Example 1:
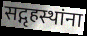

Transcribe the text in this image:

सद्गृहस्थांना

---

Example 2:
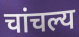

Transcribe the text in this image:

चांचल्य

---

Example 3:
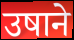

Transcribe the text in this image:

उषाने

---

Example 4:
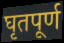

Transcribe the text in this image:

घृतपूर्ण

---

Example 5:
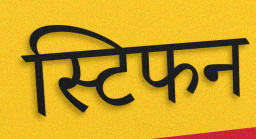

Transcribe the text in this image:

स्टिफन